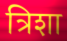
त्रिशा